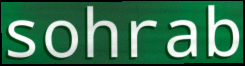
sohrab